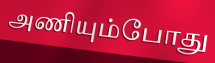
அணியும்போது